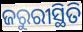
ଜରୁରୀସ୍ଥିତି